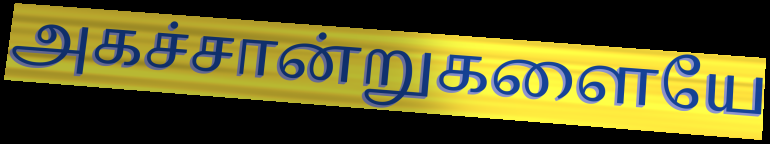
அகச்சான்றுகளையே